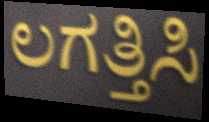
ಲಗತ್ತಿಸಿ